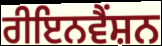
ਰੀਇਨਵੈਂਸ਼ਨ